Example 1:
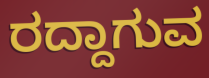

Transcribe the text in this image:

ರದ್ದಾಗುವ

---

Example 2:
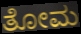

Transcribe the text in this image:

ತೋಮ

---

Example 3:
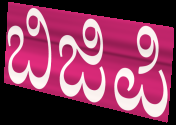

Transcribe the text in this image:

ಬಿಜಿಪಿ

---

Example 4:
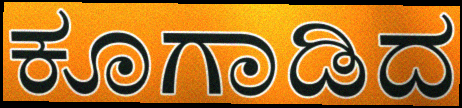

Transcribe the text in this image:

ಕೂಗಾಡಿದ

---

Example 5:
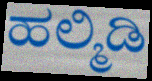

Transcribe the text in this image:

ಹಲ್ಮಿಡಿ